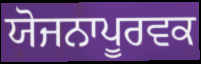
ਯੋਜਨਾਪੂਰਵਕ